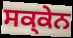
ਸਕ੍ਕੇਨ